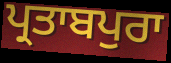
ਪ੍ਰਤਾਬਪੁਰਾ